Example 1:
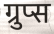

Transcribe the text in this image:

ग्रुप्स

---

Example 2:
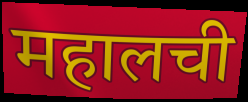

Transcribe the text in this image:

महालची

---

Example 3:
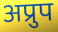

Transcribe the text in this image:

अप्रुप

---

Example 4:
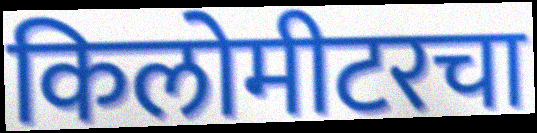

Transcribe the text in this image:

किलोमीटरचा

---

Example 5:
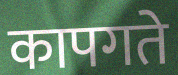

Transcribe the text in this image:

कापगते